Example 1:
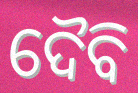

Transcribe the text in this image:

ଦୈବି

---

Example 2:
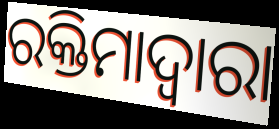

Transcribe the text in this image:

ରକ୍ତିମାଦ୍ୱାରା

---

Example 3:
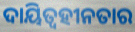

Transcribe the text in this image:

ଦାୟିତ୍ଵହୀନତାର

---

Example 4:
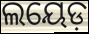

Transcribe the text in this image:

ଲୟେଡ଼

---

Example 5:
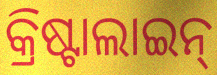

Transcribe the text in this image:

କ୍ରିଷ୍ଟାଲାଇନ୍